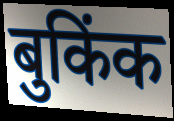
बुकिंक